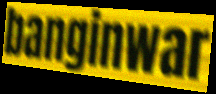
banginwar